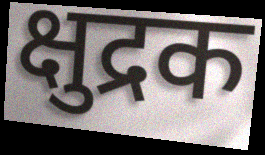
क्षुद्रक